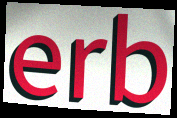
erb